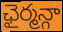
ఛైర్మన్గా